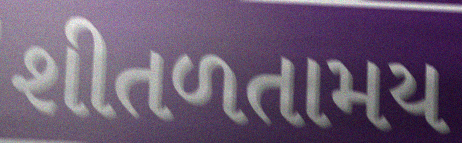
શીતળતામય